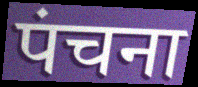
पंचना